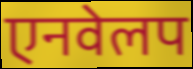
एनवेलप